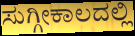
ಸುಗ್ಗೀಕಾಲದಲ್ಲಿ